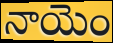
నాయెం